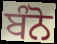
ਬੰਨੋ